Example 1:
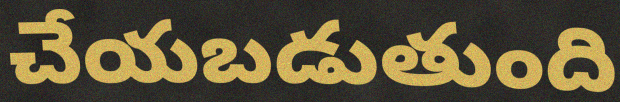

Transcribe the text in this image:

చేయబడుతుంది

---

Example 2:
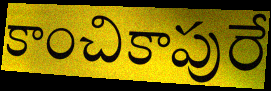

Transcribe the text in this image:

కాంచికాపురే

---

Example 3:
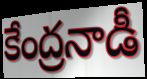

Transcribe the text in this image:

కేంద్రనాడీ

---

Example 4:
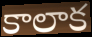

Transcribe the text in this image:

కాలాక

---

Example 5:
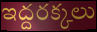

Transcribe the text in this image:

ఇద్దరక్కలు